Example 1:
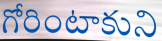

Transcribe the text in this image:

గోరింటాకుని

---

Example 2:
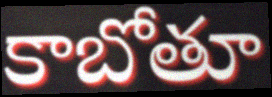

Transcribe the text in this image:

కాబోతూ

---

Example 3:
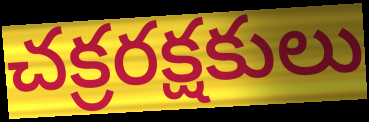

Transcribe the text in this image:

చక్రరక్షకులు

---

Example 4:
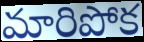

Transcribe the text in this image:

మారిపోక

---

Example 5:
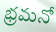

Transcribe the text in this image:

భ్రమనో